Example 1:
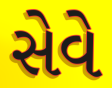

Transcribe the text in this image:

સેવે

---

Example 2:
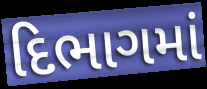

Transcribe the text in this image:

દિભાગમાં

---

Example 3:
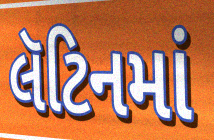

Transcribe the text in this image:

લૅટિનમાં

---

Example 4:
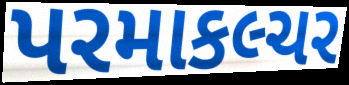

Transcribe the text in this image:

પરમાકલ્ચર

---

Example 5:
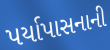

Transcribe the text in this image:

પર્યાપાસનાની